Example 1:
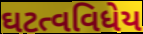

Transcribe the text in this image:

ઘટત્વવિધેય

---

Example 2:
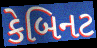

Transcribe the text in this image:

કેબિનટ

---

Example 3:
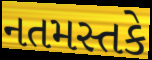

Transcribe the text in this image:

નતમસ્તકે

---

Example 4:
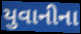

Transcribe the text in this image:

યુવાનીના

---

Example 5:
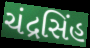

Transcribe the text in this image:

ચંદ્રસિંહ